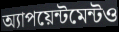
অ্যাপয়েন্টমেন্টও